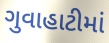
ગુવાહાટીમાં